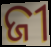
ଜୀ